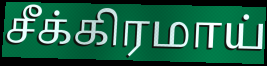
சீக்கிரமாய்